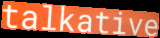
talkative